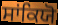
ਸਾਂਕਿਯੋ